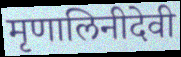
मृणालिनीदेवी